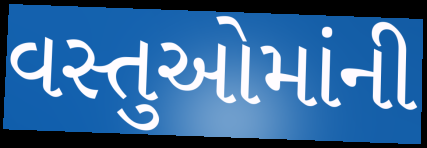
વસ્તુઓમાંની